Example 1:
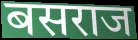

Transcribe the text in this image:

बसराज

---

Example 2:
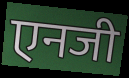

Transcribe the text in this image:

एनजी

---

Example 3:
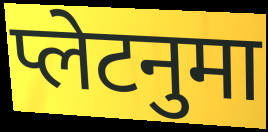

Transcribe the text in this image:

प्लेटनुमा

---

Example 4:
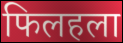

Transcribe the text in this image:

फिलहला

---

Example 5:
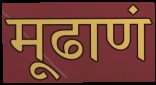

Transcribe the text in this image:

मूढाणं